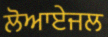
ਲੋਆਏਜਲ